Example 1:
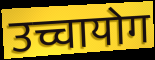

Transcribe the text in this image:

उच्चायोग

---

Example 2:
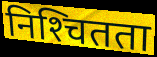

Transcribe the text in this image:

निश्चितता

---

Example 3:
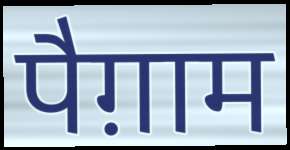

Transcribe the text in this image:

पैग़ाम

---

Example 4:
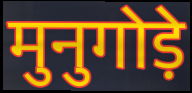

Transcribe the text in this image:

मुनुगोड़े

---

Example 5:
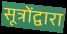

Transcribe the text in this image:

सूत्रोंद्वारा